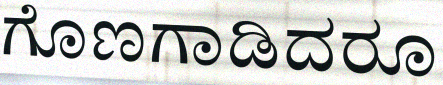
ಗೊಣಗಾಡಿದರೂ